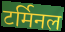
टर्मिनल